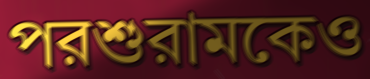
পরশুরামকেও